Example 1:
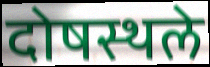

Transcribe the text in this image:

दोषस्थले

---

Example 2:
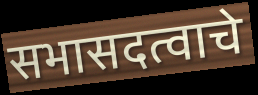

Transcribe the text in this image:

सभासदत्वाचे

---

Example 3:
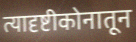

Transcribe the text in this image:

त्यादृष्टीकोनातून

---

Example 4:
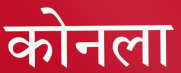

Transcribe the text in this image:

कोनला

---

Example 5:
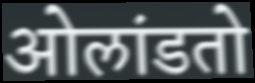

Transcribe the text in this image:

ओलांडतो